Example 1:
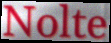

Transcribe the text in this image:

Nolte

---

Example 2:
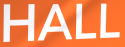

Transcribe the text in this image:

HALL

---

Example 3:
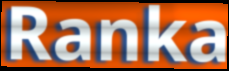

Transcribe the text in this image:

Ranka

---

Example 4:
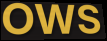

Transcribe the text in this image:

OWS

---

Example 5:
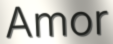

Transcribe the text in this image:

Amor